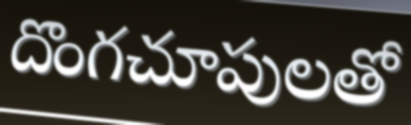
దొంగచూపులతో